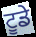
ਟੂਡੇ